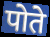
पोते